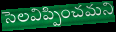
సెలవిప్పించమని